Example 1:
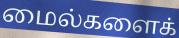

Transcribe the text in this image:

மைல்களைக்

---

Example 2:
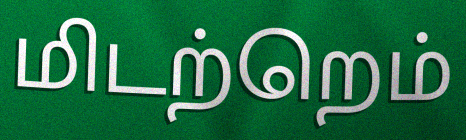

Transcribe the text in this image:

மிடற்றெம்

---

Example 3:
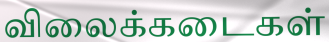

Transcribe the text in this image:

விலைக்கடைகள்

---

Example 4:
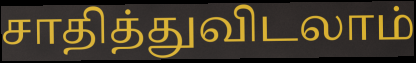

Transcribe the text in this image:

சாதித்துவிடலாம்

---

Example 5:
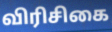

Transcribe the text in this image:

விரிசிகை